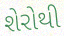
શેરોથી